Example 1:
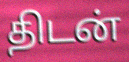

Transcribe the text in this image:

திடன்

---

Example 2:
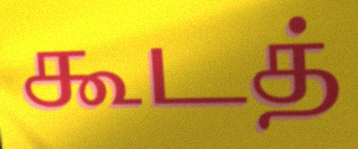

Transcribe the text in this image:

கூடத்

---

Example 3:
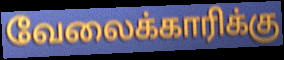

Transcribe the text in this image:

வேலைக்காரிக்கு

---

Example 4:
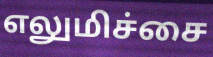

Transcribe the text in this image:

எலுமிச்சை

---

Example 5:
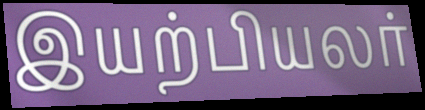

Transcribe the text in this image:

இயற்பியலர்